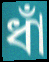
ধাঁ